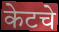
केटचे